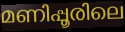
മണിപ്പൂരിലെ